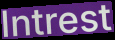
Intrest